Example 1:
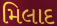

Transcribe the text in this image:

મિલાદ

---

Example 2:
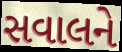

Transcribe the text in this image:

સવાલને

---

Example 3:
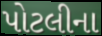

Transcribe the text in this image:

પોટલીના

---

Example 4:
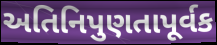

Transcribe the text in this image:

અતિનિપુણતાપૂર્વક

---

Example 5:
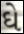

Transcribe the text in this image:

ઘે